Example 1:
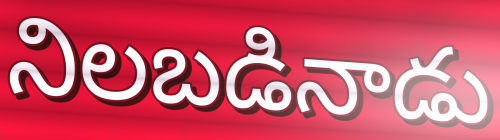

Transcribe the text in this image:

నిలబడినాడు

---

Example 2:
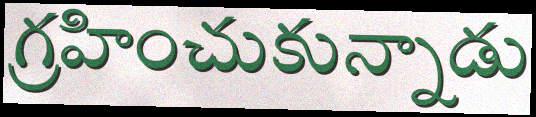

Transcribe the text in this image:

గ్రహించుకున్నాడు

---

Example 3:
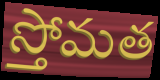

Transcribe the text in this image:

స్తోమత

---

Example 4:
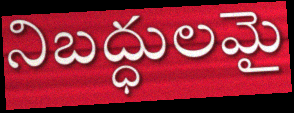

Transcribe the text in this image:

నిబద్ధులమై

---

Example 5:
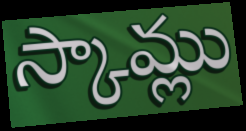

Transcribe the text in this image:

స్కామ్లు